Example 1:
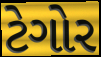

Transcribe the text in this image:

ટેગોર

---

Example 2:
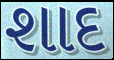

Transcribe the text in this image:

શાદ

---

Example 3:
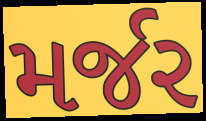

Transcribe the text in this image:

મર્જર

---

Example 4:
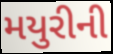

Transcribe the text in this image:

મયુરીની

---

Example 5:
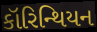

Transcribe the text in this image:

કૉરિન્થિયન